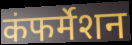
कंफर्मेशन